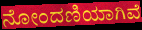
ನೋಂದಣಿಯಾಗಿವೆ